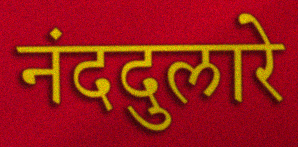
नंददुलारे